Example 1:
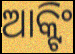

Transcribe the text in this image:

ଆକ୍ଟିଂ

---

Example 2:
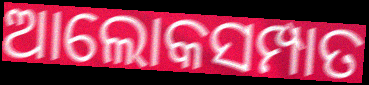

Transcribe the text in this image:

ଆଲୋକସମ୍ପାତ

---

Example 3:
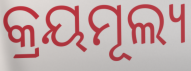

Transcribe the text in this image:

କ୍ରୟମୂଲ୍ୟ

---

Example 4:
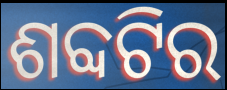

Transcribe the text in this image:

ଶବ୍ଦଟିର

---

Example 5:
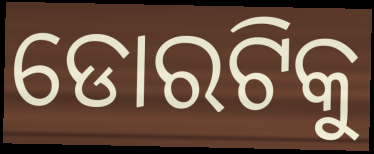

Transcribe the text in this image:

ଡୋରଟିକୁ